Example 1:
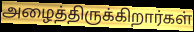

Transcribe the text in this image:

அழைத்திருக்கிறார்கள்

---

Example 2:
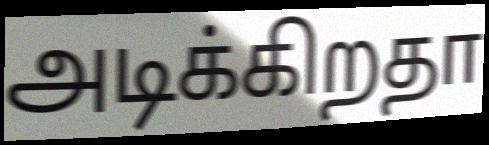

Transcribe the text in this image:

அடிக்கிறதா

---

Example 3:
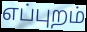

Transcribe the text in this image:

எப்புறம்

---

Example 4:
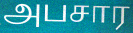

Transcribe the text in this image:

அபசார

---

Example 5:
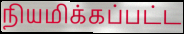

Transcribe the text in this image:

நியமிக்கப்பட்ட